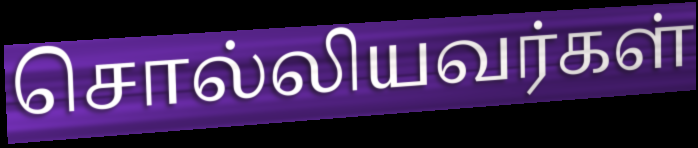
சொல்லியவர்கள்